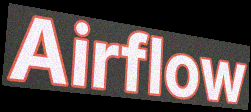
Airflow